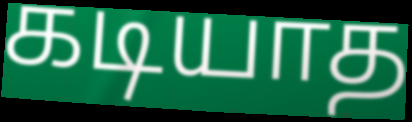
கடியாத